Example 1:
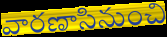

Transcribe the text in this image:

వారణాసినుంచి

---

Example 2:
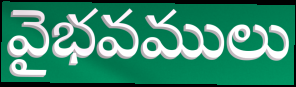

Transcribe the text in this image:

వైభవములు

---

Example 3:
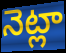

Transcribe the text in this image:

నెట్లా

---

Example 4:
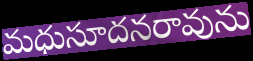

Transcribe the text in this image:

మధుసూదనరావును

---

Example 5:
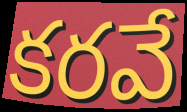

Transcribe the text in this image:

కరవే